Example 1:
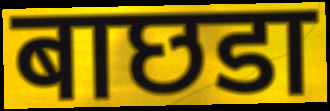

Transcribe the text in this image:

बाछडा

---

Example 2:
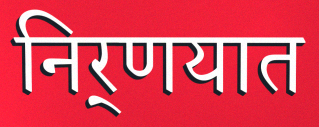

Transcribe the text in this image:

निर्णयात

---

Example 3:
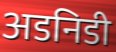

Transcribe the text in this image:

अडनिडी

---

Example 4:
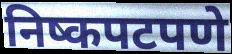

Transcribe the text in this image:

निष्कपटपणे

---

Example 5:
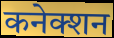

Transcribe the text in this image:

कनेक्‍शन